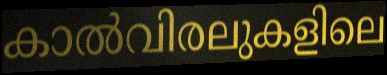
കാൽവിരലുകളിലെ